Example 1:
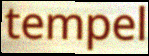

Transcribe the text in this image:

tempel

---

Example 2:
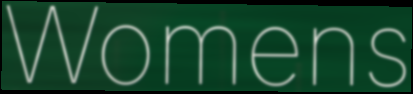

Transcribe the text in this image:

Womens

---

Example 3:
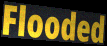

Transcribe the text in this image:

Flooded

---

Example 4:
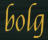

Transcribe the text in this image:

bolg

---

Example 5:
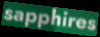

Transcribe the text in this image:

sapphires